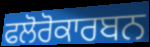
ਫਲੋਰੋਕਾਰਬਨ